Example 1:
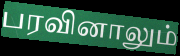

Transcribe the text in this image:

பரவினாலும்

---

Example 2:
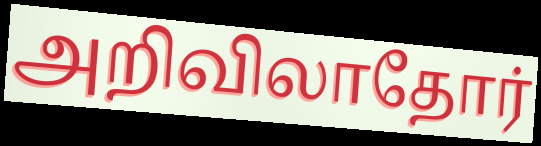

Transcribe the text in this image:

அறிவிலாதோர்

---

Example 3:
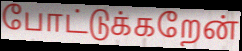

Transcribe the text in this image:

போட்டுக்கறேன்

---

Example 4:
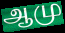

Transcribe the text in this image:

ஆமு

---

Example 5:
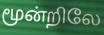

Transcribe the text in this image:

மூன்றிலே